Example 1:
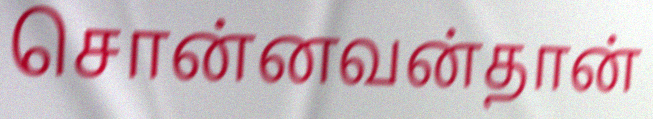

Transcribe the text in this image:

சொன்னவன்தான்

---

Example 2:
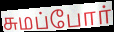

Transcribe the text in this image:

சுமப்போர்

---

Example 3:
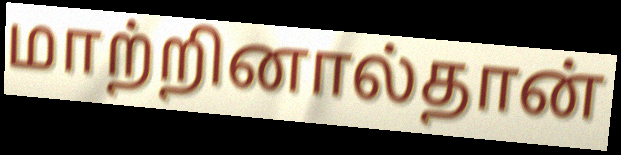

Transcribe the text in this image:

மாற்றினால்தான்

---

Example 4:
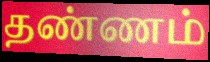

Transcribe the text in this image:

தண்ணம்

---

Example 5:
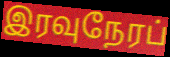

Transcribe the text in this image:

இரவுநேரப்